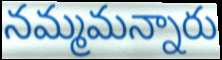
నమ్మమన్నారు